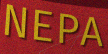
NEPA